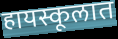
हायस्कूलात